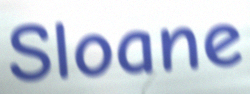
Sloane